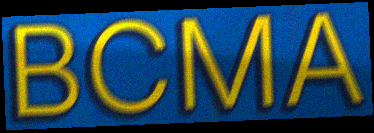
BCMA